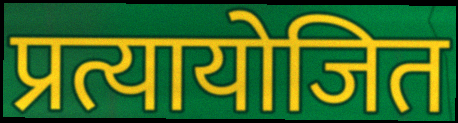
प्रत्यायोजित